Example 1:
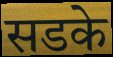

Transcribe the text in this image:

सडके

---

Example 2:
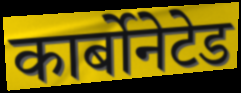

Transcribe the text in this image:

कार्बोनेटेड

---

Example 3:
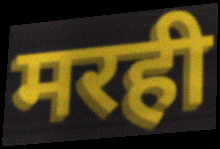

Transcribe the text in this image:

मरही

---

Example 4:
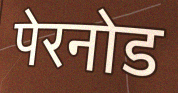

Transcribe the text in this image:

पेरनोड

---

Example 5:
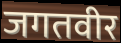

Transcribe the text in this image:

जगतवीर